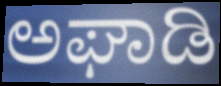
ಅಘಾಡಿ